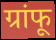
ग्रांफू